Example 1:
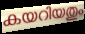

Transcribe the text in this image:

കയറിയതും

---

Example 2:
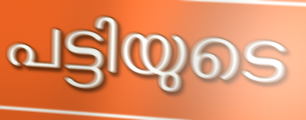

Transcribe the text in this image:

പട്ടിയുടെ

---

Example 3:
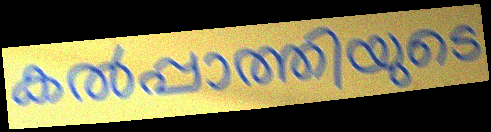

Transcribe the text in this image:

കൽപ്പാത്തിയുടെ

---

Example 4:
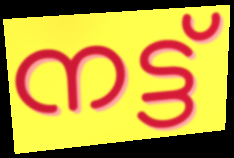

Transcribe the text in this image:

നട്ട്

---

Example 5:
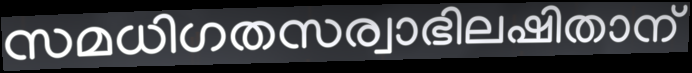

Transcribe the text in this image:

സമധിഗതസര്വാഭിലഷിതാന്